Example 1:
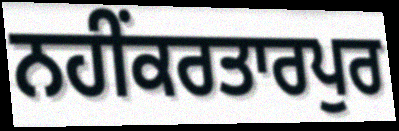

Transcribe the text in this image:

ਨਹੀਂਕਰਤਾਰਪੁਰ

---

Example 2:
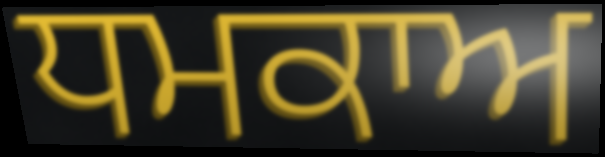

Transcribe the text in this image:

ਧਮਕਾਅ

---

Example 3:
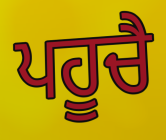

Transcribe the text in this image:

ਪਹੂਚੈ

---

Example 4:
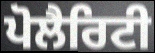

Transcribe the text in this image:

ਪੋਲੈਰਿਟੀ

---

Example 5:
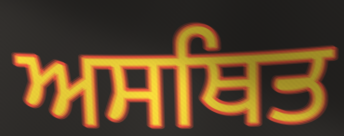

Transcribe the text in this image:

ਅਸਥਿਤ